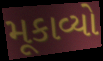
મૂકાવ્યો